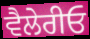
ਵੈਲੇਰੀਓ